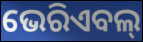
ଭେରିଏବଲ୍